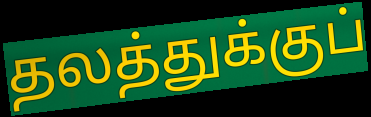
தலத்துக்குப்